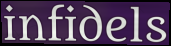
infidels